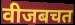
वीजबचत